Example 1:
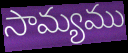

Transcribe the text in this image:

సామ్యము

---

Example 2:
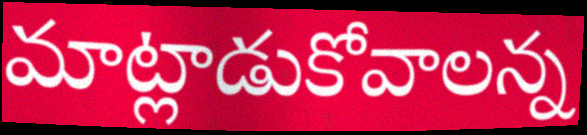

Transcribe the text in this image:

మాట్లాడుకోవాలన్న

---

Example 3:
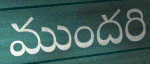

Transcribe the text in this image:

ముందరి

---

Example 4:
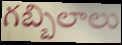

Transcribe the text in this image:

గబ్బిలాలు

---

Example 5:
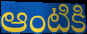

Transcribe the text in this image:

ఆంటికి